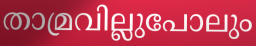
താമ്രവില്ലുപോലും